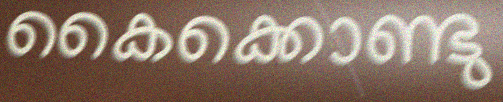
കൈക്കൊണ്ടു